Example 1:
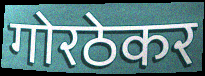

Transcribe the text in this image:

गोरठेकर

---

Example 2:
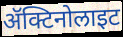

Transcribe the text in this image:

ॲक्टिनोलाइट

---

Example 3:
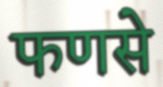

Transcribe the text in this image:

फणसे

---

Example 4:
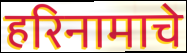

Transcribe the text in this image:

हरिनामाचे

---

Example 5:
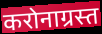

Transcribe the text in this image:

करोनाग्रस्त